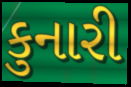
કુનારી